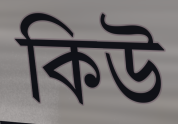
কিউ